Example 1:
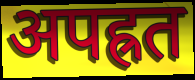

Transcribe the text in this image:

अपह्रत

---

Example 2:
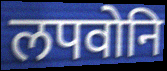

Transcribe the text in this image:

लपवोनि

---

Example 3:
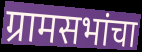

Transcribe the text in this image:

ग्रामसभांचा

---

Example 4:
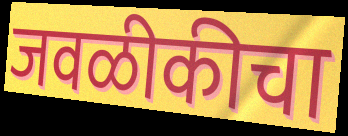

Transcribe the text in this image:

जवळीकीचा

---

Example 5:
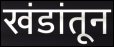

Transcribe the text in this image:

खंडांतून